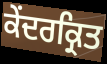
ਕੇਂਦਰਕ੍ਰਿਤ